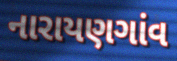
નારાયણગાંવ